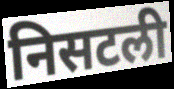
निसटली